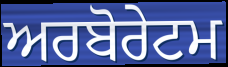
ਅਰਬੋਰੇਟਮ